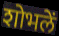
शोभलें